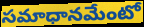
సమాధానమేంటో